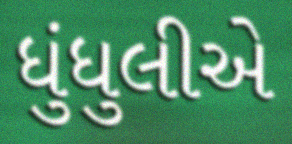
ધુંધુલીએ